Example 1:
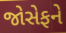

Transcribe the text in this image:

જોસેફને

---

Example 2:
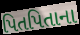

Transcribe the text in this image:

પિતપિતાના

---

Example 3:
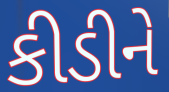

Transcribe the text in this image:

કીડીને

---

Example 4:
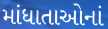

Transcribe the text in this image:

માંધાતાઓનાં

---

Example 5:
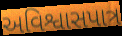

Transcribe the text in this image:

અવિશ્વાસપાત્ર